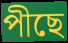
পীছে